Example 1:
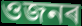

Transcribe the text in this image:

ওজনৰ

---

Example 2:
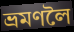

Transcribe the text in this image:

ভ্ৰমণলৈ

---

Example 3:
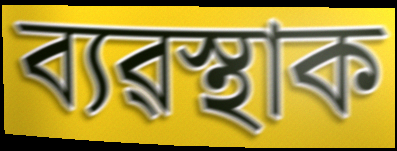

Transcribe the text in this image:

ব্যৱস্থাক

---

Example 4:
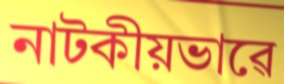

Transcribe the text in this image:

নাটকীয়ভাৱে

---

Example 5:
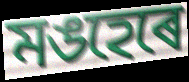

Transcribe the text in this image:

মঙহেৰে